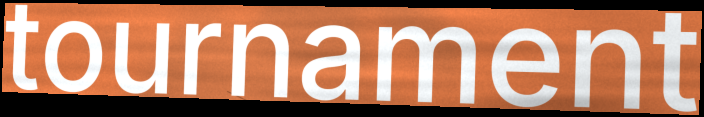
tournament